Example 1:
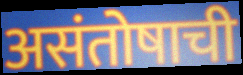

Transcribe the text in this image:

असंतोषाची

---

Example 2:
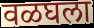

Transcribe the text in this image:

वळघला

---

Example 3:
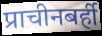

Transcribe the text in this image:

प्राचीनबर्ही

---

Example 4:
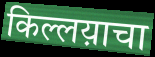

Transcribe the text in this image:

किल्लय़ाचा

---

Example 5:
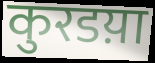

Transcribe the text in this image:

कुरडय़ा